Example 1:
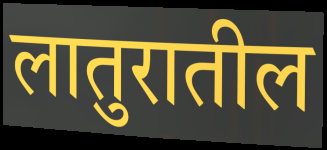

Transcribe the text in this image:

लातुरातील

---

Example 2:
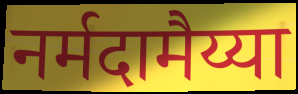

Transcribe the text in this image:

नर्मदामैय्या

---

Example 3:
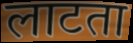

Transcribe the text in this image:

लाटता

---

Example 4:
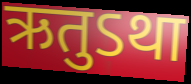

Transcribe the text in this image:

ऋतुऽथा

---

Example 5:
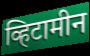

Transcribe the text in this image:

व्हिटामीन